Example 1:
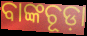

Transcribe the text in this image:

ବାଙ୍କଚୂଡ଼ା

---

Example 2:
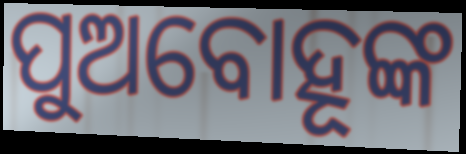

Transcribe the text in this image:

ପୁଅବୋହୂଙ୍କ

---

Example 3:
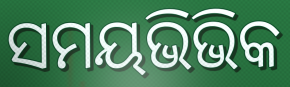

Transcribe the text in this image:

ସମୟଭିଭିକ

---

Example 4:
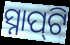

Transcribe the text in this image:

ସ୍ନାପ୍‍ଟି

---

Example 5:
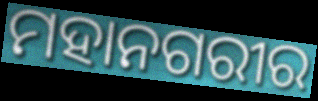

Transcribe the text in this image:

ମହାନଗରୀର